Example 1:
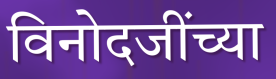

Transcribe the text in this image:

विनोदजींच्या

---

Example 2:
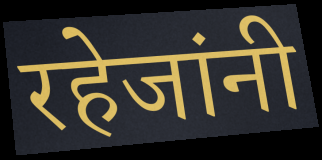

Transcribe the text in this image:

रहेजांनी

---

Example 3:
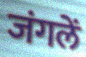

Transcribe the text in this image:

जंगलें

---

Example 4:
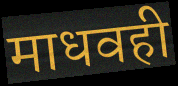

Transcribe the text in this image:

माधवही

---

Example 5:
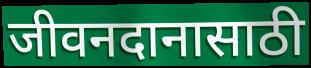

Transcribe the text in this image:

जीवनदानासाठी